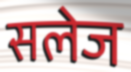
सलेज